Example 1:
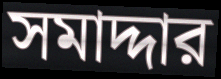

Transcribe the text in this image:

সমাদ্দার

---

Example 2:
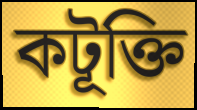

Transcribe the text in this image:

কটূক্তি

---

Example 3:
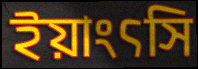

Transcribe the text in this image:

ইয়াংৎসি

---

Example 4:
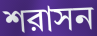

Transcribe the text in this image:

শরাসন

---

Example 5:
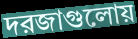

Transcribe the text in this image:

দরজাগুলোয়